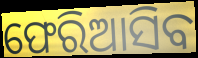
ଫେରିଆସିବ